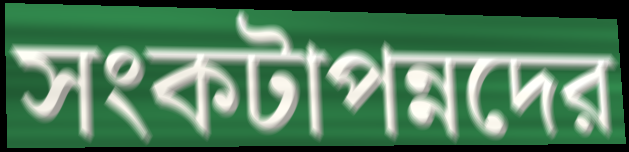
সংকটাপন্নদের